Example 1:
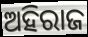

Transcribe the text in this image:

ଅହିରାଜ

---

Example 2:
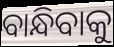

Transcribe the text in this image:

ବାନ୍ଧିବାକୁ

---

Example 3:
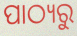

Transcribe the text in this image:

ପାଠ୍ୟରୁ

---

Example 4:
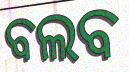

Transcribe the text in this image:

ବଲବ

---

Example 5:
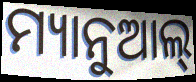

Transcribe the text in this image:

ମ୍ୟାନୁଆଲ୍